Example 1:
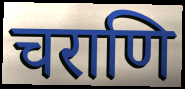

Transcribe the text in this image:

चराणि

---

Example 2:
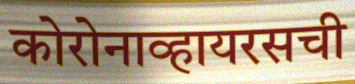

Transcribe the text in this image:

कोरोनाव्हायरसची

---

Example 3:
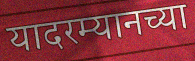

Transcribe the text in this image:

यादरम्यानच्या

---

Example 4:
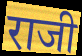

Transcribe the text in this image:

राजी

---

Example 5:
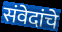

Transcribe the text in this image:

संवेदांचे